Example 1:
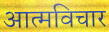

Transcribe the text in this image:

आत्मविचार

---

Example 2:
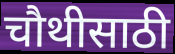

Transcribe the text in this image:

चौथीसाठी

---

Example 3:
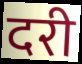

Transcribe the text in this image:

दरी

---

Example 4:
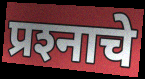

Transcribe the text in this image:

प्रश्‍नाचे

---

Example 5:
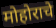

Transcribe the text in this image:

मोहोराचे